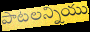
పాటలన్నియు